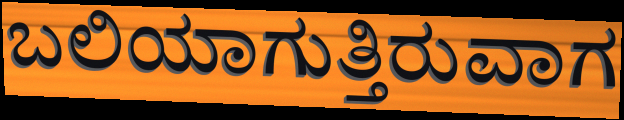
ಬಲಿಯಾಗುತ್ತಿರುವಾಗ